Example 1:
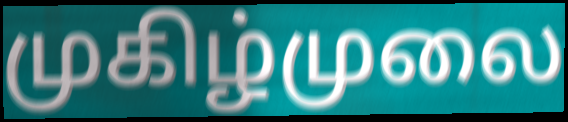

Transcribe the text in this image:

முகிழ்முலை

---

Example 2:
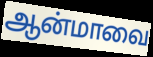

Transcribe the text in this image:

ஆன்மாவை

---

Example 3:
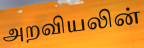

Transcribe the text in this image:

அறவியலின்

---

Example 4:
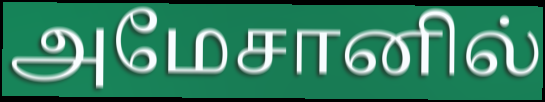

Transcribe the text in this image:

அமேசானில்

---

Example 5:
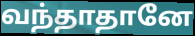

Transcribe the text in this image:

வந்தாதானே